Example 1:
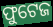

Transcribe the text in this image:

ଫୁଟେଜ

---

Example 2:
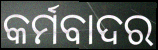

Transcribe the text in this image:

କର୍ମବାଦର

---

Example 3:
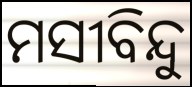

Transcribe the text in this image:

ମସୀବିନ୍ଦୁ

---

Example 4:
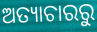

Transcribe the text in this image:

ଅତ୍ୟାଚାରରୁ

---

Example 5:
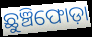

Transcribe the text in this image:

ଛୁଞ୍ଚିଫୋଡ଼ା